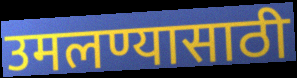
उमलण्यासाठी